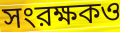
সংরক্ষকও